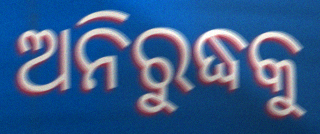
ଅନିରୁଦ୍ଧକୁ